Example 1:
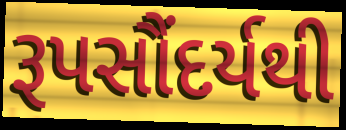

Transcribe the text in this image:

રૂપસૌંદર્યથી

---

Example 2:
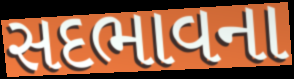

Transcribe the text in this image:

સદભાવના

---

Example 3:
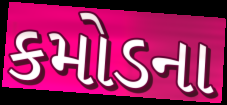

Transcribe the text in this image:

કમોડના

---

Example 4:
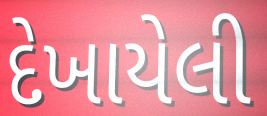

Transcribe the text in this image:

દેખાયેલી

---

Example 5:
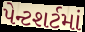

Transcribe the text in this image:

પેન્ટશર્ટમાં